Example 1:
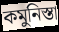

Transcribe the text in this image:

কমুনিস্তা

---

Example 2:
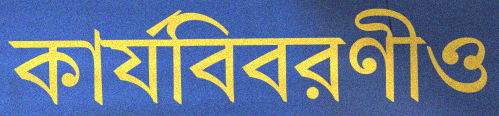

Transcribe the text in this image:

কার্যবিবরণীও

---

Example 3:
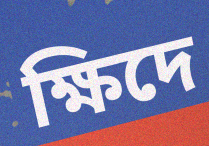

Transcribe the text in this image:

ক্ষিদে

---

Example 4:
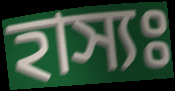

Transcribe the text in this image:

হাস্যঃ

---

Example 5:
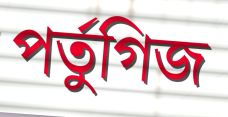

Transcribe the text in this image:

পর্তুগিজ